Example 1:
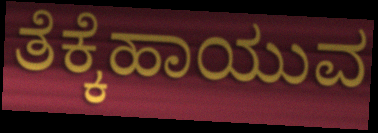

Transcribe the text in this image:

ತೆಕ್ಕೆಹಾಯುವ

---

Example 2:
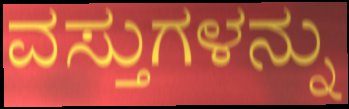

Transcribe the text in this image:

ವಸ್ತುಗಳನ್ನು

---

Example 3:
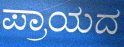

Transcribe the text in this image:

ಪ್ರಾಯದ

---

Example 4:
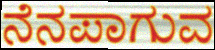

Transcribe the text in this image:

ನೆನಪಾಗುವ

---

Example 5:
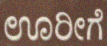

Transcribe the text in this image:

ಊರೀಗೆ